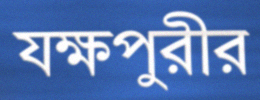
যক্ষপুরীর